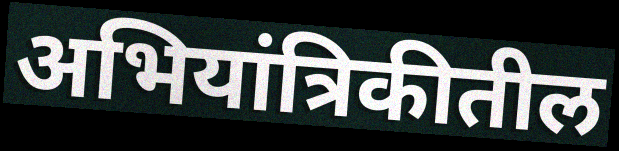
अभियांत्रिकीतील